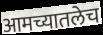
आमच्यातलेच